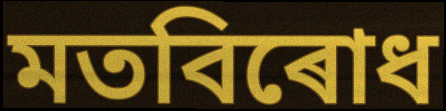
মতবিৰোধ